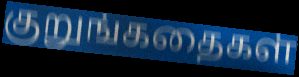
குறுங்கதைகள்